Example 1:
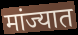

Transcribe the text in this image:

मांज्यात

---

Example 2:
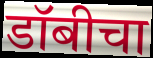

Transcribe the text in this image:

डॉबीचा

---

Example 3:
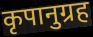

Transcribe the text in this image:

कृपानुग्रह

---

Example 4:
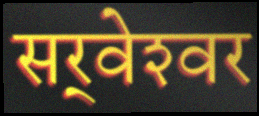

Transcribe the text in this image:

सर्वेश्वर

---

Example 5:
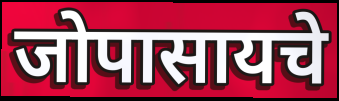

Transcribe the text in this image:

जोपासायचे